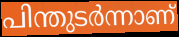
പിന്തുടർന്നാണ്